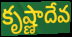
కృష్ణాదేవ